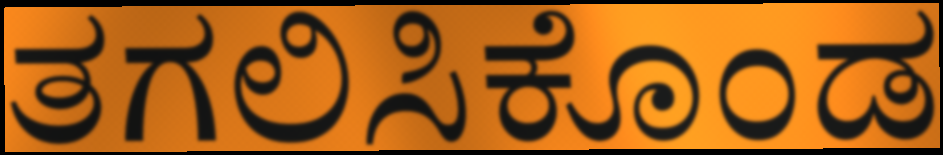
ತಗಲಿಸಿಕೊಂಡ